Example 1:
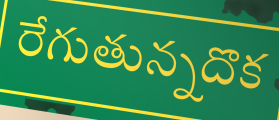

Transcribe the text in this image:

రేగుతున్నదొక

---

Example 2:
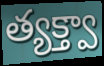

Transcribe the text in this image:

త్యక్త్వా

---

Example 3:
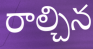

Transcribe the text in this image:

రాల్చిన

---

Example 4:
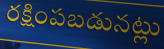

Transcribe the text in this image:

రక్షింపబడునట్లు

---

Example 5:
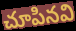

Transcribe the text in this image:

చూపినవి